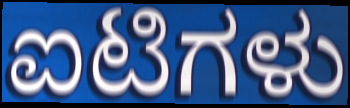
ಐಟಿಗಳು